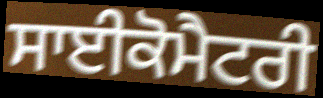
ਸਾਈਕੋਮੈਟਰੀ